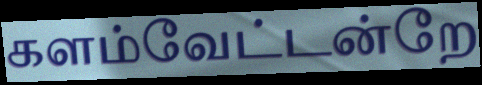
களம்வேட்டன்றே